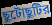
ছুটোছুটির